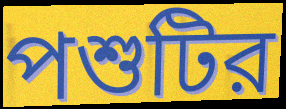
পশুটির